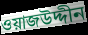
ওয়াজউদ্দীন